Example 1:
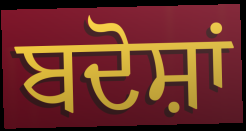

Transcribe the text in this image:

ਬਦੋਸ਼ਾਂ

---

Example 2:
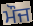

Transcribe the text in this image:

ਮੌਜ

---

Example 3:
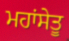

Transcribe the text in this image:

ਮਹਾਂਸੇਤੂ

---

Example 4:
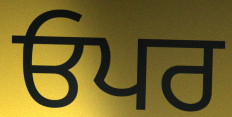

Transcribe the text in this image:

ਓਪਰ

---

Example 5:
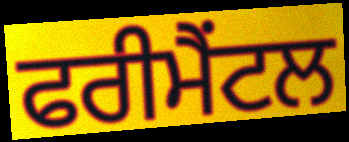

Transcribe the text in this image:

ਫਰੀਮੈਂਟਲ